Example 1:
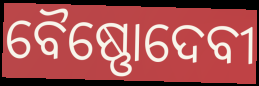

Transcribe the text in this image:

ବୈଷ୍ଣୋଦେବୀ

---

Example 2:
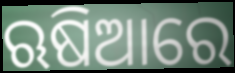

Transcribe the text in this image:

ଋଷିଆରେ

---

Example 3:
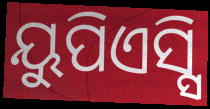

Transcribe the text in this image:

ୟୁପିଏସ୍ସି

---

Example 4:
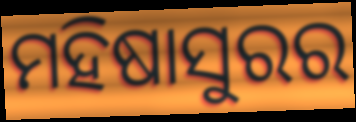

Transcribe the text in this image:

ମହିଷାସୁରର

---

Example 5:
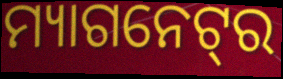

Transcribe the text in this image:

ମ୍ୟାଗନେଟ୍‌ର